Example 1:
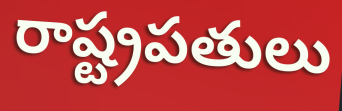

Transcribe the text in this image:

రాష్ట్రపతులు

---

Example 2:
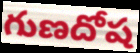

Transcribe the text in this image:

గుణదోష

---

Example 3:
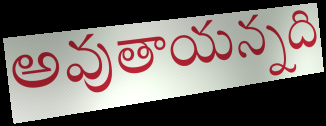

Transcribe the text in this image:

అవుతాయన్నది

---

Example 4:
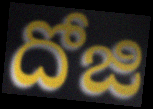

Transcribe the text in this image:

దోజి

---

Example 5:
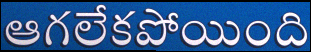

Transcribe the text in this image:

ఆగలేకపోయింది